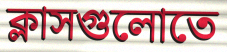
ক্লাসগুলোতে